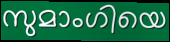
സുമാംഗിയെ